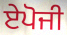
ਏਪੋਜੀ